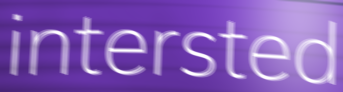
intersted